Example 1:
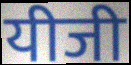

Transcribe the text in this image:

यीजी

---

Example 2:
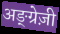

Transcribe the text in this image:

अङ्ग्रेज़ी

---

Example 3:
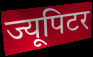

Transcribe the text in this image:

ज्यूपिटर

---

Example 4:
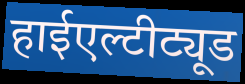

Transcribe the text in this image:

हाईएल्टीट्यूड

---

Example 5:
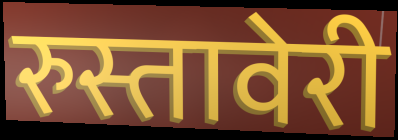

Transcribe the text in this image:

रुस्तावेरी